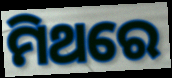
ମିଥରେ